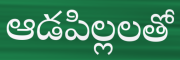
ఆడపిల్లలతో